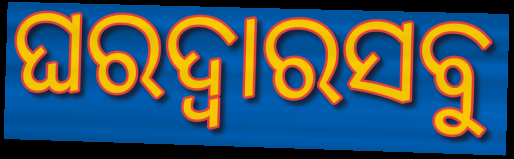
ଘରଦ୍ୱାରସବୁ